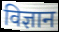
विज्ञान